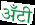
अँटी